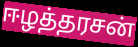
ஈழத்தரசன்